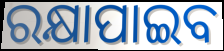
ରକ୍ଷାପାଇବ